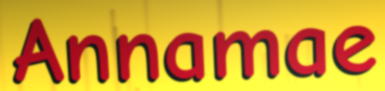
Annamae